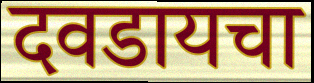
दवडायचा